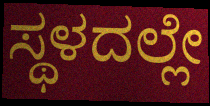
ಸ್ಥಳದಲ್ಲೇ